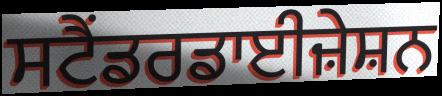
ਸਟੈਂਡਰਡਾਈਜ਼ੇਸ਼ਨ